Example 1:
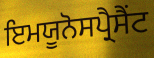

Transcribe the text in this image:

ਇਮਯੂਨੋਸਪ੍ਰੈਸੈਂਟ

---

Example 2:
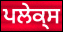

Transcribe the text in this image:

ਪਲੇਕ੍ਸ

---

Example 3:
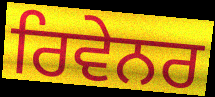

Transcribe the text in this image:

ਰਿਵੇਨਰ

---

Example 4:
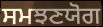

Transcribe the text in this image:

ਸਮਝਣਯੋਗ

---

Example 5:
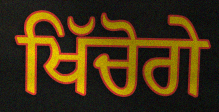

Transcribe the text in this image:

ਖਿੱਚੋਗੇ